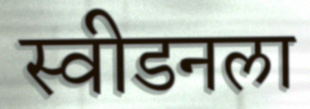
स्वीडनला